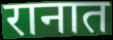
रानात